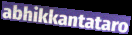
abhikkantataro